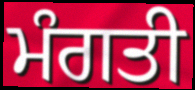
ਮੰਗਤੀ